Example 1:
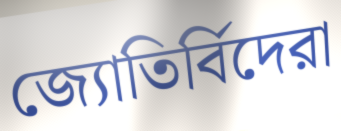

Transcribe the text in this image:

জ্যোতির্বিদেরা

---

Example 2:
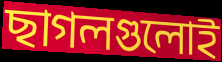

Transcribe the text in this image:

ছাগলগুলোই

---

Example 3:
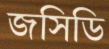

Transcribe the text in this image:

জসিডি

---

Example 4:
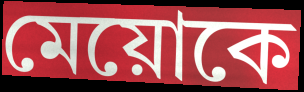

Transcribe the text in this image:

মেয়োকে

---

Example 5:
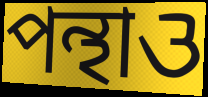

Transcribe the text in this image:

পন্থাও